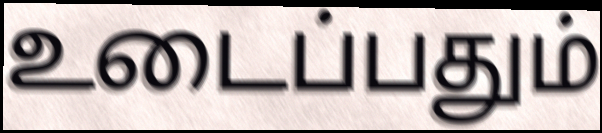
உடைப்பதும்